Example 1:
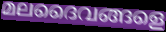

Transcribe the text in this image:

മലദൈവങ്ങളെ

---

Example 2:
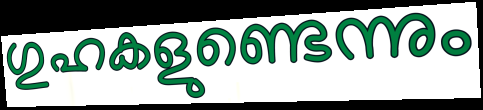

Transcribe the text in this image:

ഗുഹകളുണ്ടെന്നും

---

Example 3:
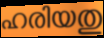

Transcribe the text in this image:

ഹരിയതു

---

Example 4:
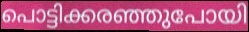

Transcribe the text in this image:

പൊട്ടിക്കരഞ്ഞുപോയി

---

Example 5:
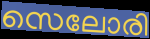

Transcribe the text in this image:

സെലോരി